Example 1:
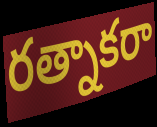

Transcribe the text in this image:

రత్నాకరా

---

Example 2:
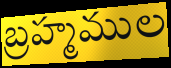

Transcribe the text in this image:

బ్రహ్మముల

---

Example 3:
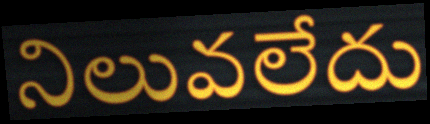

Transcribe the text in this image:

నిలువలేదు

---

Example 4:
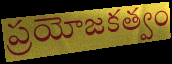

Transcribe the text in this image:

ప్రయోజకత్వం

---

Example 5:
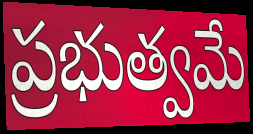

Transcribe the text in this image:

ప్రభుత్వమే